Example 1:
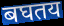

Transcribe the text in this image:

बघतय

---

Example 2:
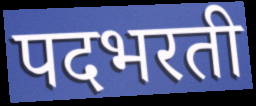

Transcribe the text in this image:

पदभरती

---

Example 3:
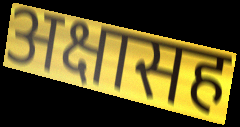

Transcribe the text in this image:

अक्षासह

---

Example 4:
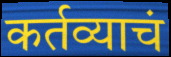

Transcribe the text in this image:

कर्तव्याचं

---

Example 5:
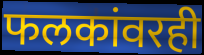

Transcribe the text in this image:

फलकांवरही